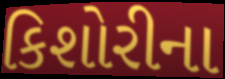
કિશોરીના